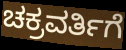
ಚಕ್ರವರ್ತಿಗೆ